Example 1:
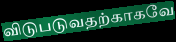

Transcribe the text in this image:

விடுபடுவதற்காகவே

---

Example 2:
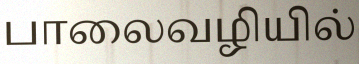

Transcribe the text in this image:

பாலைவழியில்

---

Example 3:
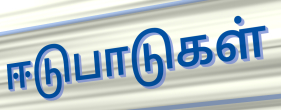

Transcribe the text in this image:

ஈடுபாடுகள்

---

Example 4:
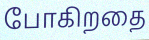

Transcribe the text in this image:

போகிறதை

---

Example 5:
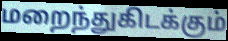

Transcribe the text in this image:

மறைந்துகிடக்கும்